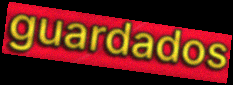
guardados